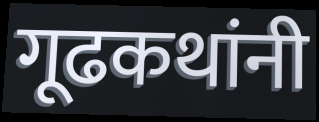
गूढकथांनी